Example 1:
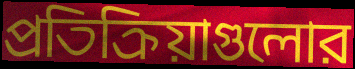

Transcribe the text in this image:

প্রতিক্রিয়াগুলোর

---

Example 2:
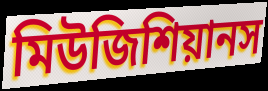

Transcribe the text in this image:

মিউজিশিয়ানস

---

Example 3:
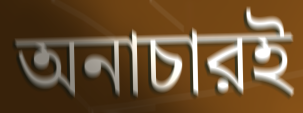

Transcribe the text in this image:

অনাচারই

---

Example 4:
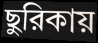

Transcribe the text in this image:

ছুরিকায়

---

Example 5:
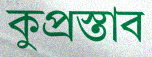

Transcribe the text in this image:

কুপ্রস্তাব